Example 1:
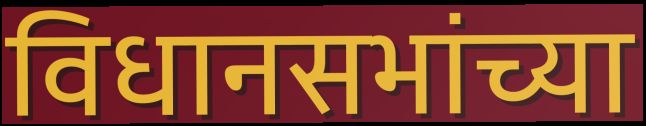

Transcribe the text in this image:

विधानसभांच्या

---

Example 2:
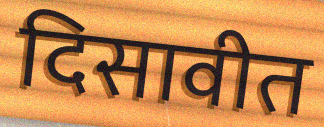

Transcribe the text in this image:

दिसावीत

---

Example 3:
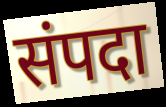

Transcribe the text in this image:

संपदा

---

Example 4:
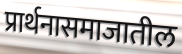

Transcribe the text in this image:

प्रार्थनासमाजातील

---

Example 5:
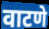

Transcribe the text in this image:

वाटणे